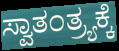
ಸ್ವಾತಂತ್ರ್ಯಕ್ಕೆ